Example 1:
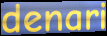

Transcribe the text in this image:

denari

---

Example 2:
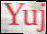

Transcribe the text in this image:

Yuj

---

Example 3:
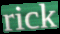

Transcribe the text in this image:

rick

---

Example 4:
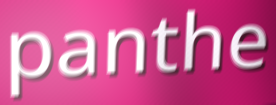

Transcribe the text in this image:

panthe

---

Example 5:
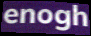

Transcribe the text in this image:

enogh